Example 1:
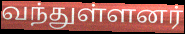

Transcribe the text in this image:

வந்துள்ளனர்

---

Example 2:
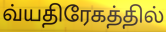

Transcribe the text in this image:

வ்யதிரேகத்தில்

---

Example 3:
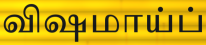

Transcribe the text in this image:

விஷமாய்ப்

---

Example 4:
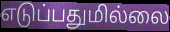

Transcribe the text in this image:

எடுப்பதுமில்லை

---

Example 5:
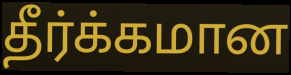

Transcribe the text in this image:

தீர்க்கமான